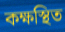
কক্ষস্থিত